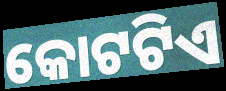
କୋଟଟିଏ